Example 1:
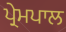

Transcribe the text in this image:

ਪ੍ਰੇਮਪਾਲ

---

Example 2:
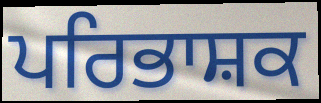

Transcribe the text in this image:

ਪਰਿਭਾਸ਼ਕ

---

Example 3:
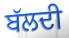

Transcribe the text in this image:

ਬੱਲਦੀ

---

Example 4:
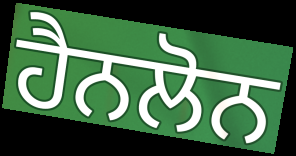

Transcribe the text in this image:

ਹੈਨਲੋਨ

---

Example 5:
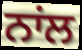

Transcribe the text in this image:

ਨਾਂਲ